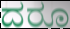
ದರೂ